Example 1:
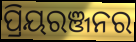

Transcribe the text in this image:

ପ୍ରିୟରଞ୍ଜନର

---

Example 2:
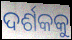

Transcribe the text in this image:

ଦର୍ଶକକୁ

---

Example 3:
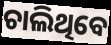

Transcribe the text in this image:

ଚାଲିଥିବେ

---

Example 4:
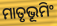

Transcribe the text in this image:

ମାତୃଭୂମିଂ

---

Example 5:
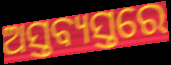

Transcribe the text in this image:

ଅସ୍ତବ୍ୟସ୍ତରେ